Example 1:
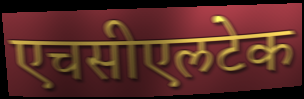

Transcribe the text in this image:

एचसीएलटेक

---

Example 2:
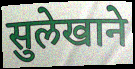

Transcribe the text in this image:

सुलेखाने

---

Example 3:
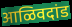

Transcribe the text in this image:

आळिवदांड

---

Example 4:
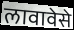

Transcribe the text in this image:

लावावेसे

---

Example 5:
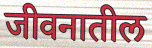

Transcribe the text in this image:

जीवनातील